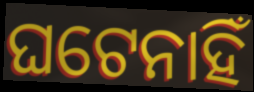
ଘଟେନାହିଁ